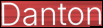
Danton